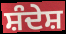
ਸ਼ੰਦੇਸ਼